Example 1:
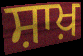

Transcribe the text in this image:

ਸ਼ਾਖ਼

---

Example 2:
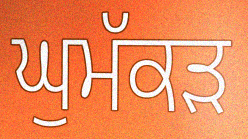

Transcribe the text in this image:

ਘੁਮੱਕਡ਼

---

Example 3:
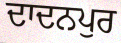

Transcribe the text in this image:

ਦਾਦਨਪੁਰ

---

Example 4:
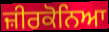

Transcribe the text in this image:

ਜ਼ੀਰਕੋਨਿਆ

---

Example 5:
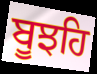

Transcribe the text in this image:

ਬੂਝਹਿ